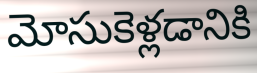
మోసుకెళ్లడానికి